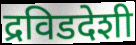
द्रविडदेशी